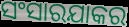
ସଂସାରଯାକର